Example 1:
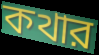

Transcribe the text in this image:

কথার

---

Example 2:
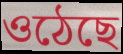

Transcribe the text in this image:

ওঠেছে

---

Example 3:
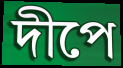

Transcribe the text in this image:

দীপে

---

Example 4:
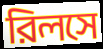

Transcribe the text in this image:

রিলসে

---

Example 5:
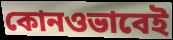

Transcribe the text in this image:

কোনওভাবেই